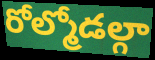
రోల్మోడల్గా